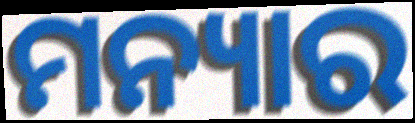
ମନ୍ୟାର